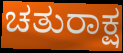
ಚತುರಾಕ್ಷ